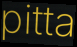
pitta